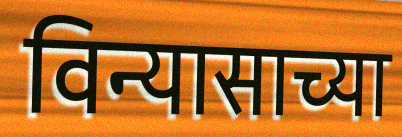
विन्यासाच्या